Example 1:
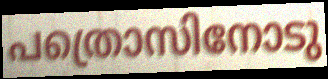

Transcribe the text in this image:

പത്രൊസിനോടു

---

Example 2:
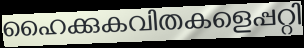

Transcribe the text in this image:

ഹൈക്കുകവിതകളെപ്പറ്റി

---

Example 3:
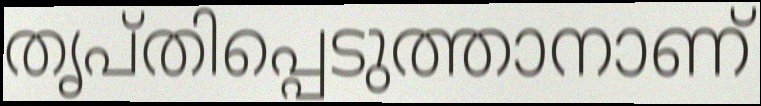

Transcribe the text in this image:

തൃപ്തിപ്പെടുത്താനാണ്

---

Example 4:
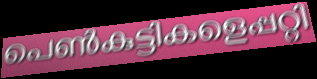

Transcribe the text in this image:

പെൺകുട്ടികളെപ്പറ്റി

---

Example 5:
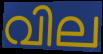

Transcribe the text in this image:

വില